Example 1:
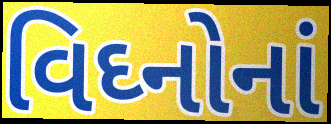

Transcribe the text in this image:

વિઘ્નોનાં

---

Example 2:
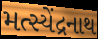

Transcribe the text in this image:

મત્સ્યેંદ્રનાથ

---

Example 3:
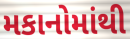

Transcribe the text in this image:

મકાનોમાંથી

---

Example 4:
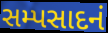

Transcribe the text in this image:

સમ્પસાદનં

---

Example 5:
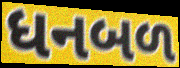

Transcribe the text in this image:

ધનબળ